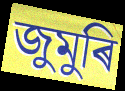
জুমুৰি